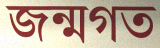
জন্মগত